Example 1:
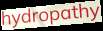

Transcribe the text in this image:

hydropathy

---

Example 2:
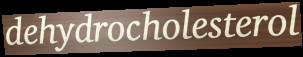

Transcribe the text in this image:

dehydrocholesterol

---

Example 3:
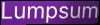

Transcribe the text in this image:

Lumpsum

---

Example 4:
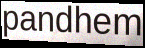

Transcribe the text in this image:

pandhem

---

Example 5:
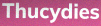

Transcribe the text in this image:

Thucydies